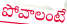
పోవాలంటే